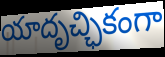
యాదృచ్ఛికంగా